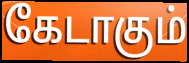
கேடாகும்